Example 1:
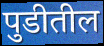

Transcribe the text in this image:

पुडीतील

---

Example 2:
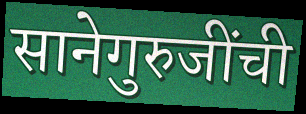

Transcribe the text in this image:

सानेगुरुजींची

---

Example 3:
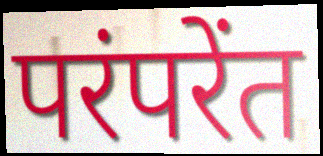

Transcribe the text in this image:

परंपरेंत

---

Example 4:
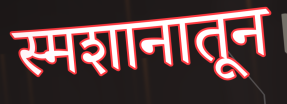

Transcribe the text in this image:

स्मशानातून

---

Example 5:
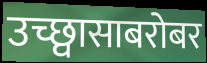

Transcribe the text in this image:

उच्छ्वासाबरोबर